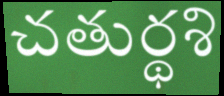
చతుర్థశి